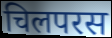
चिलपरस